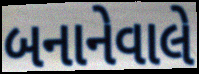
બનાનેવાલે